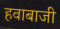
हवाबाजी